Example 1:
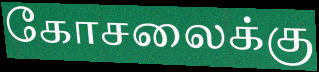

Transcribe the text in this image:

கோசலைக்கு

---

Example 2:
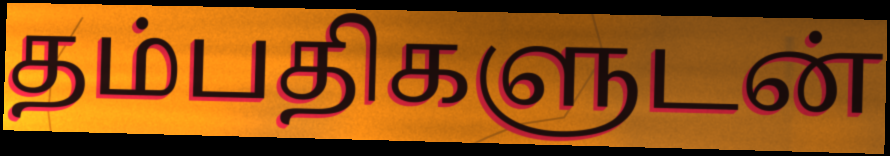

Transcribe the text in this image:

தம்பதிகளுடன்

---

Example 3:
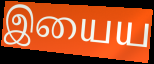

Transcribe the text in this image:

இயைய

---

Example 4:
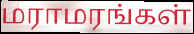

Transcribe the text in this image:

மராமரங்கள்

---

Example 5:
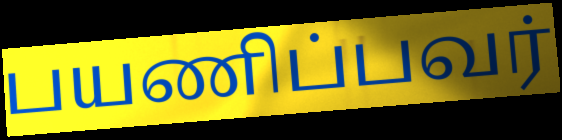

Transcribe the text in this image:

பயணிப்பவர்